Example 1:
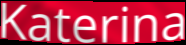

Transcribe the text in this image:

Katerina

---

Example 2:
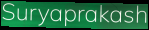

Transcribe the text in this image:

Suryaprakash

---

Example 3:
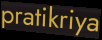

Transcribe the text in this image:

pratikriya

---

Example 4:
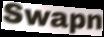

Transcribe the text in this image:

Swapn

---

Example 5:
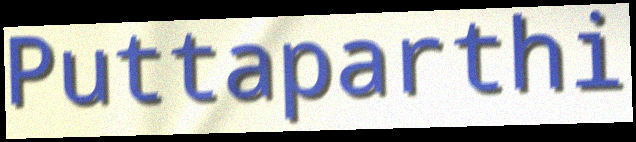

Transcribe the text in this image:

Puttaparthi